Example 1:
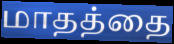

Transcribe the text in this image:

மாதத்தை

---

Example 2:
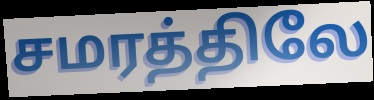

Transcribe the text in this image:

சமரத்திலே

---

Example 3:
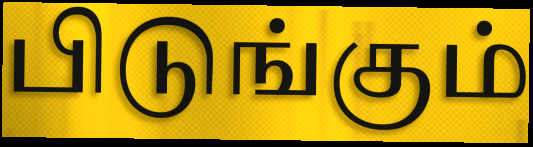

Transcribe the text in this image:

பிடுங்கும்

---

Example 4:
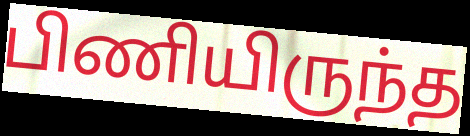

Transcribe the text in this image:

பிணியிருந்த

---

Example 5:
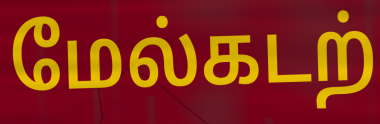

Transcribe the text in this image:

மேல்கடற்